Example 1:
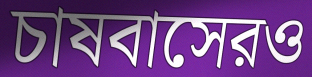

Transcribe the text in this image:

চাষবাসেরও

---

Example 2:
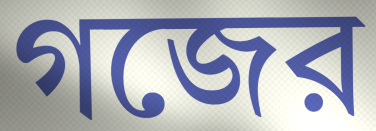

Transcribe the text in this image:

গজের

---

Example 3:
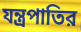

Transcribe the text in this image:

যন্ত্রপাতির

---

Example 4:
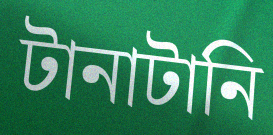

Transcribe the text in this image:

টানাটানি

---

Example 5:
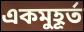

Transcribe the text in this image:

একমুহূর্ত